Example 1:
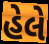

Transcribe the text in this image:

હેલે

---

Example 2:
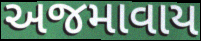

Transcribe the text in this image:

અજમાવાય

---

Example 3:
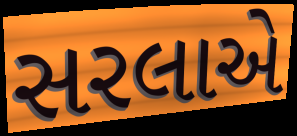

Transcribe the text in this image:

સરલાએ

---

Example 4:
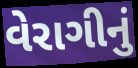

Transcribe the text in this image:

વેરાગીનું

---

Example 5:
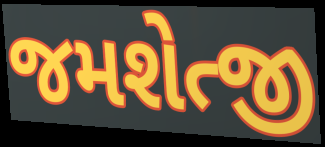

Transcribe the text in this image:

જમશેત્જી